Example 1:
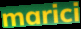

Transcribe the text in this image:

marici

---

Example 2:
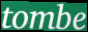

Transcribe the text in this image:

tombe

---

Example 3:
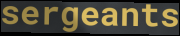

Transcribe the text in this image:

sergeants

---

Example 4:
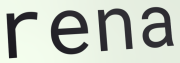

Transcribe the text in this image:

rena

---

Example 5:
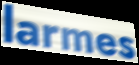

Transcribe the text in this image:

larmes